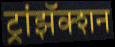
ट्रांझॅक्शन